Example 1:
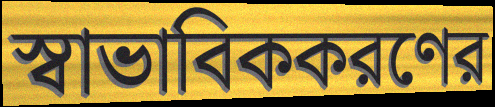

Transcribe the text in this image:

স্বাভাবিককরণের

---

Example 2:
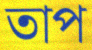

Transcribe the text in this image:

তাপ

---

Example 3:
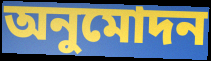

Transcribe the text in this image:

অনুমোদন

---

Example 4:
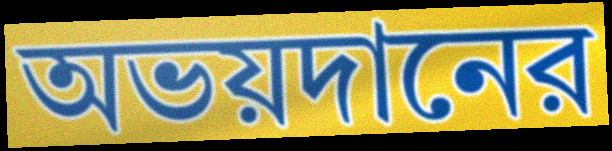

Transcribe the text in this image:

অভয়দানের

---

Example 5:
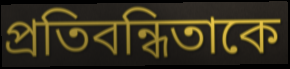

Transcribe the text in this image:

প্রতিবন্ধিতাকে